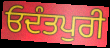
ਓਦੰਤਪੁਰੀ